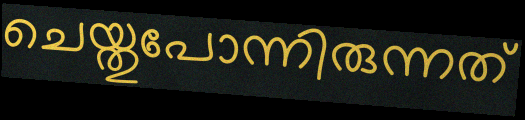
ചെയ്തുപോന്നിരുന്നത്